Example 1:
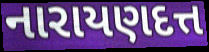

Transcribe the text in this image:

નારાયણદત્ત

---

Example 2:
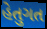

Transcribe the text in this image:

હેતુગત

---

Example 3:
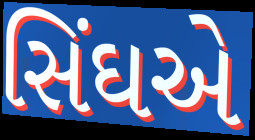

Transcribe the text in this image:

સિંઘએ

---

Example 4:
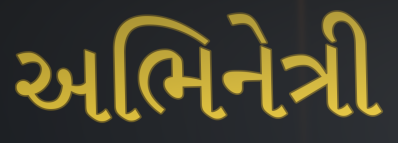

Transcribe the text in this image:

અભિનેત્રી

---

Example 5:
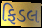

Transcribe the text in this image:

ફિડલ